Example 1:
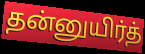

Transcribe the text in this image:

தன்னுயிர்த்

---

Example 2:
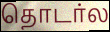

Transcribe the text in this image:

தொடர்ல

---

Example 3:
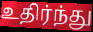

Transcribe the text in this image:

உதிர்ந்து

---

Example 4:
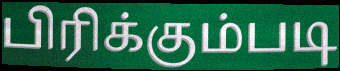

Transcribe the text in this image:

பிரிக்கும்படி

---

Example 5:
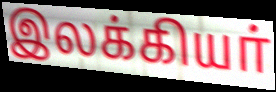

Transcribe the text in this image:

இலக்கியர்